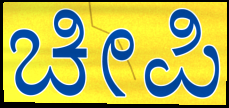
ಚೀಪಿ